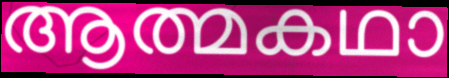
ആത്മകഥാ